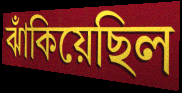
ঝাঁকিয়েছিল